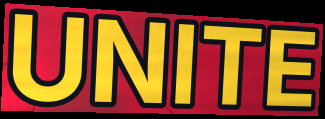
UNITE